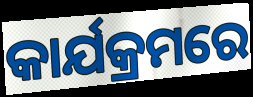
କାର୍ଯକ୍ରମରେ